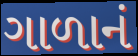
ગાળાનં